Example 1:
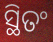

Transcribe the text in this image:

ସ୍ଥିତଂ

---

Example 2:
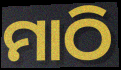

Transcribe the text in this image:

ମାଠି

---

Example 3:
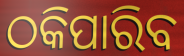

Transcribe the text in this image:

ଠକିପାରିବ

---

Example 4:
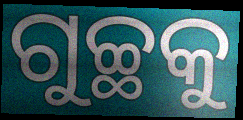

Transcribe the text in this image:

ଗୁଚ୍ଛକୁ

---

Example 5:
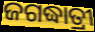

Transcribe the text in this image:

ଜଗଦ୍ଧାତ୍ରୀ